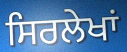
ਸਿਰਲੇਖਾਂ